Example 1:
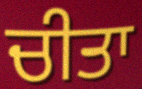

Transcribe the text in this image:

ਚੀਤਾ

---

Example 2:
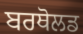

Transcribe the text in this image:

ਬਰਥੋਲਡ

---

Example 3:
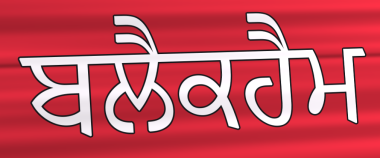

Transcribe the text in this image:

ਬਲੈਕਹੈਮ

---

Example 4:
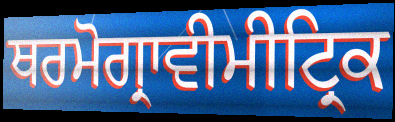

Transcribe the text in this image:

ਥਰਮੋਗ੍ਰਾਵੀਮੀਟ੍ਰਿਕ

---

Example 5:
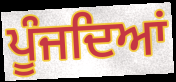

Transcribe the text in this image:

ਪੂੰਜਦਿਆਂ